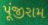
પૂંજીરામ